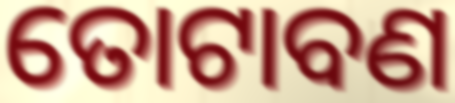
ତୋଟାବଣ